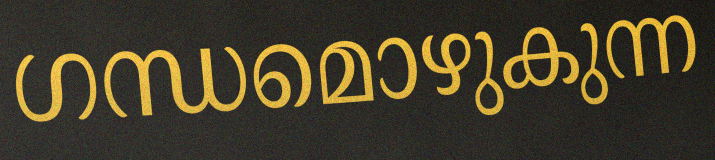
ഗന്ധമൊഴുകുന്ന